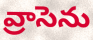
వ్రాసెను